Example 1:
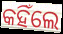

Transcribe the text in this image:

କହିଁଲେ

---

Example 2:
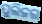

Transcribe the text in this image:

ପୁଲିଜର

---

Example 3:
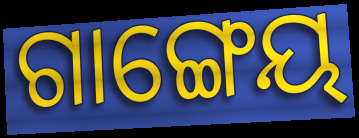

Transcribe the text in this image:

ଗାଙ୍ଗେୟ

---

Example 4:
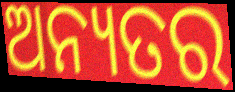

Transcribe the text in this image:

ଅନ୍ୟତର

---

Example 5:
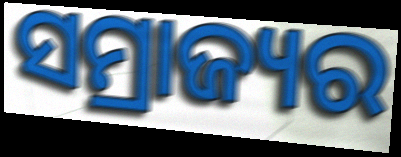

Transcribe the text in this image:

ସମ୍ରାଜ୍ୟର